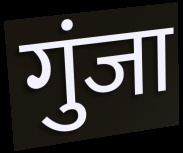
गुंजा